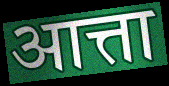
आत्ता